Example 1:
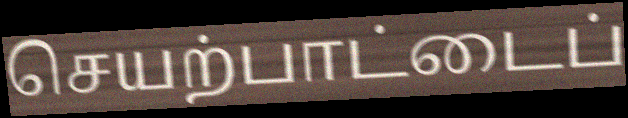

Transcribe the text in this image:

செயற்பாட்டைப்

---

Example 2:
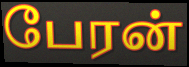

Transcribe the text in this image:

பேரன்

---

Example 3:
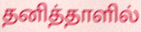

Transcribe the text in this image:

தனித்தாளில்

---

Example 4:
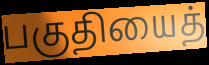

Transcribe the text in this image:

பகுதியைத்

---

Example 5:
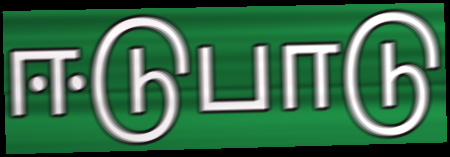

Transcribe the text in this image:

ஈடுபாடு